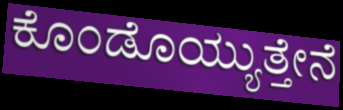
ಕೊಂಡೊಯ್ಯುತ್ತೇನೆ